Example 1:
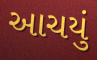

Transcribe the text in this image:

આચયું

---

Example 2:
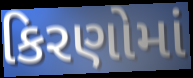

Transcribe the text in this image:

કિરણોમાં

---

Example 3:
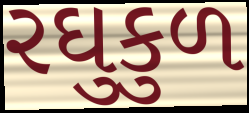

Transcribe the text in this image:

રઘુકુળ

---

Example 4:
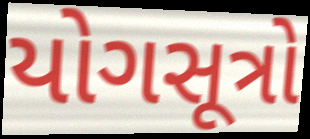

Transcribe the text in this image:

યોગસૂત્રો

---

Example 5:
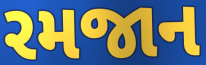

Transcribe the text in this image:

રમજાન